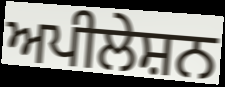
ਅਪੀਲੇਸ਼ਨ